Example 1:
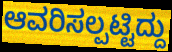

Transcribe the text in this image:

ಆವರಿಸಲ್ಪಟ್ಟಿದ್ದು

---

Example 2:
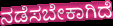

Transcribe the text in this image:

ನಡೆಸಬೇಕಾಗಿದೆ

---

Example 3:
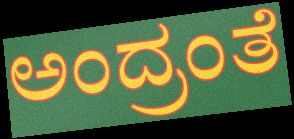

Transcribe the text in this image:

ಅಂದ್ರಂತೆ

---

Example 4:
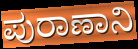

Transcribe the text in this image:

ಪುರಾಣಾನಿ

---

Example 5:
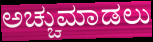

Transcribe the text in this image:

ಅಚ್ಚುಮಾಡಲು